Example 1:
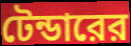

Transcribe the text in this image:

টেন্ডারের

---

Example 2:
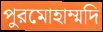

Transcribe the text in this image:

পুরমোহাম্মদি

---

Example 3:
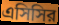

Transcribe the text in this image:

এসিসির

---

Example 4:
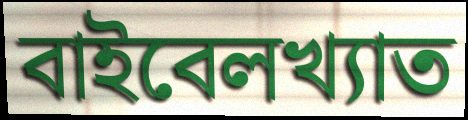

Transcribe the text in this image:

বাইবেলখ্যাত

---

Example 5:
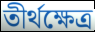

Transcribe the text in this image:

তীর্থক্ষেত্র